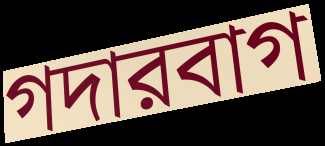
গদারবাগ